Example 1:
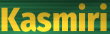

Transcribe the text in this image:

Kasmiri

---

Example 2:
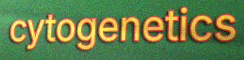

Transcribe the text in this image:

cytogenetics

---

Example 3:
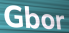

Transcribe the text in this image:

Gbor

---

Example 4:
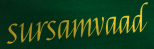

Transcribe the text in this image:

sursamvaad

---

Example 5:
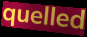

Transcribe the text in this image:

quelled